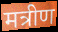
मत्रीण